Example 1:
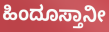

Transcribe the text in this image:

ಹಿಂದೂಸ್ತಾನೀ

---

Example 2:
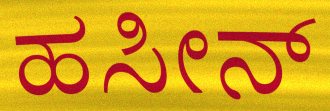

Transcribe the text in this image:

ಹಸೀನ್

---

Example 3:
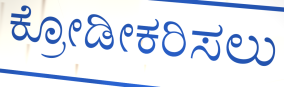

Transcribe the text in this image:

ಕ್ರೋಡೀಕರಿಸಲು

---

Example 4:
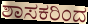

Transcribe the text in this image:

ಶಾಸಕರಿಂದ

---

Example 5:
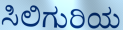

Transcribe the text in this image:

ಸಿಲಿಗುರಿಯ